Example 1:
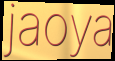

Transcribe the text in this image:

jaoya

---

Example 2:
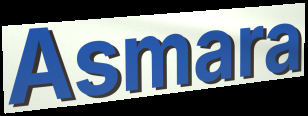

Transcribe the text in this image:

Asmara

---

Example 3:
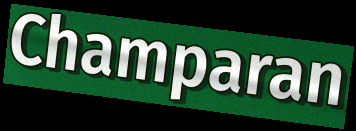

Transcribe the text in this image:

Champaran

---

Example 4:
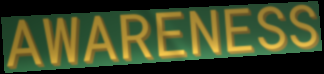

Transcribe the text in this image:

AWARENESS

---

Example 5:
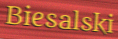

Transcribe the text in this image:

Biesalski